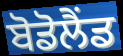
ਬੋਡੋਲੈਂਡ